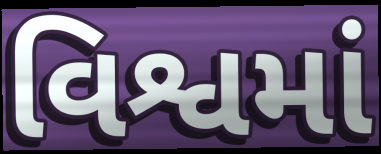
વિશ્વમાં